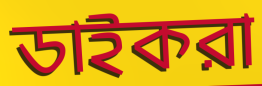
ডাইকরা